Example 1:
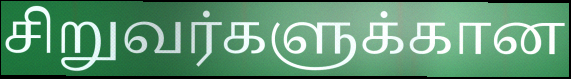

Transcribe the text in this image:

சிறுவர்களுக்கான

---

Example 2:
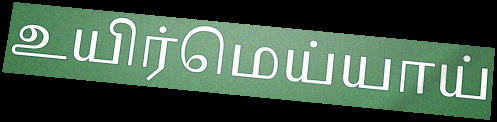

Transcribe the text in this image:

உயிர்மெய்யாய்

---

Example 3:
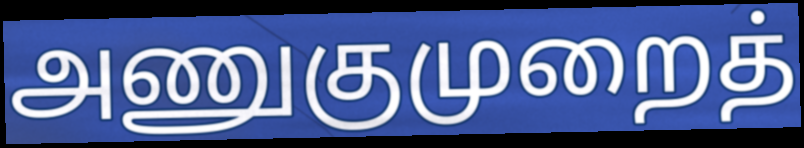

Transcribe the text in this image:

அணுகுமுறைத்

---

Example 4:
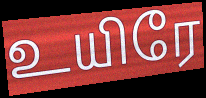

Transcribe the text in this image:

உயிரே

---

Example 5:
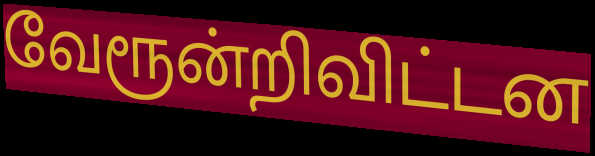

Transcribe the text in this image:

வேரூன்றிவிட்டன